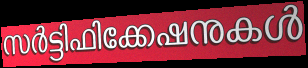
സർട്ടിഫിക്കേഷനുകൾ